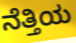
ನೆತ್ತಿಯ